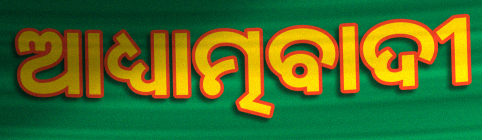
ଆଧ୍ୟାତ୍ମବାଦୀ